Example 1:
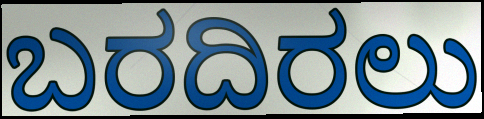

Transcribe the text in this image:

ಬರದಿರಲು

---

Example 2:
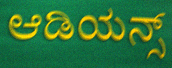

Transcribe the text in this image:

ಆಡಿಯನ್ಸ್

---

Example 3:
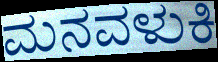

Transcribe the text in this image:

ಮನವಳುಕಿ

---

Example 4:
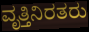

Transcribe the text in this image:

ವೃತ್ತಿನಿರತರು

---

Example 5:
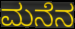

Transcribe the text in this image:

ಮನೆನ